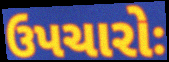
ઉપચારોઃ